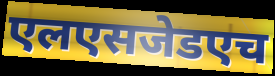
एलएसजेडएच